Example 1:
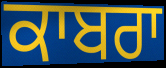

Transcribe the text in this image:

ਕਾਬਰਾ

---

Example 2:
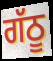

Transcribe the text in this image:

ਗੱਠੂ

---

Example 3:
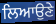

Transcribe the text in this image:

ਲਿਆਉਣੇ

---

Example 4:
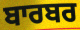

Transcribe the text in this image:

ਬਾਰਬਰ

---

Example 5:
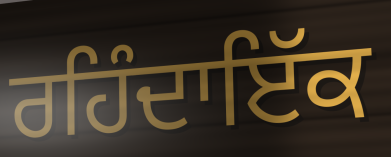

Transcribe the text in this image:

ਰਹਿੰਦਾਇੱਕ